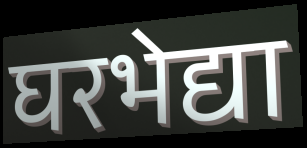
घरभेद्या